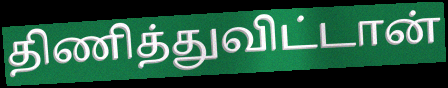
திணித்துவிட்டான்